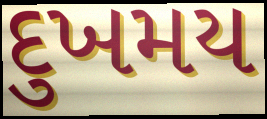
દુખમય